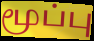
மூப்பு